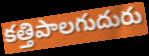
కత్తిపాలగుదురు